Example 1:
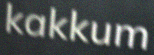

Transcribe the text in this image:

kakkum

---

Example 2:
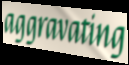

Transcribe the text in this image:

aggravating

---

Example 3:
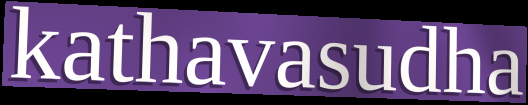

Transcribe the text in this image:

kathavasudha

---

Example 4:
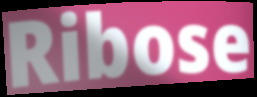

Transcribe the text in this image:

Ribose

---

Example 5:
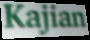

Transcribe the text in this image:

Kajian